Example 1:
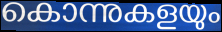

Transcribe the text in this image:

കൊന്നുകളയും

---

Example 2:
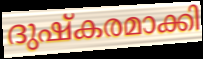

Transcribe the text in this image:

ദുഷ്കരമാക്കി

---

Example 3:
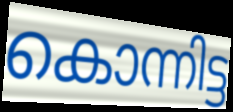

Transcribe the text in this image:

കൊന്നിട്ട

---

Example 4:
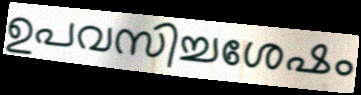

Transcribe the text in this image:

ഉപവസിച്ചശേഷം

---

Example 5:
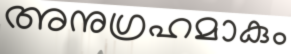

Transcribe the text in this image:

അനുഗ്രഹമാകും